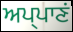
ਅਪ੍ਪਾਣਂ